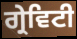
ਗ੍ਰੇਵਿਟੀ